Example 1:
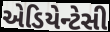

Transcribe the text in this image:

એડિયેન્ટેસી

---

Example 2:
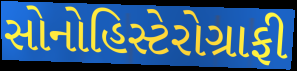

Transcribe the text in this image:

સોનોહિસ્ટેરોગ્રાફી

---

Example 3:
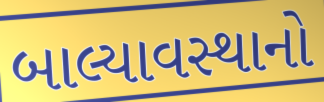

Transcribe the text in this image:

બાલ્યાવસ્થાનો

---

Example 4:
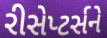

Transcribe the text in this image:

રીસેપ્ટર્સને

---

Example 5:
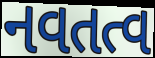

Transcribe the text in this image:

નવતત્વ